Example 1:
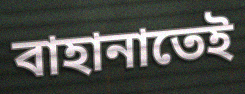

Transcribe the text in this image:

বাহানাতেই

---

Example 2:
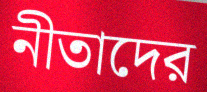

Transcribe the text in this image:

নীতাদের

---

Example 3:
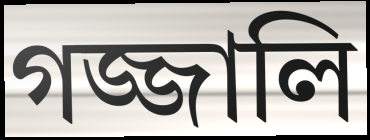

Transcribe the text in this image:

গজ্জালি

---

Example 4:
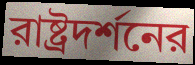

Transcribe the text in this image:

রাষ্ট্রদর্শনের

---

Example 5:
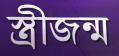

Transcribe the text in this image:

স্ত্রীজন্ম